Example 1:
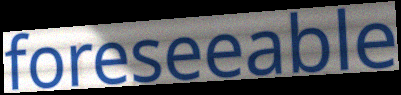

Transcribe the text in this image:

foreseeable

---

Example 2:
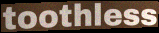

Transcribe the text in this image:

toothless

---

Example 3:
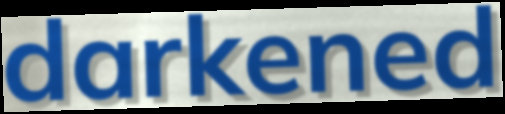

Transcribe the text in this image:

darkened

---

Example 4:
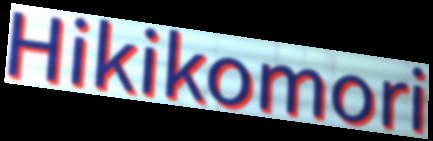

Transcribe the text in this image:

Hikikomori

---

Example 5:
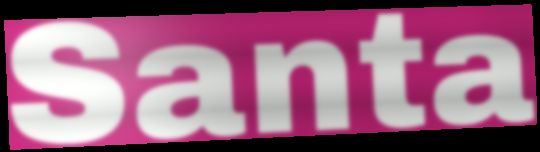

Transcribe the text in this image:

Santa